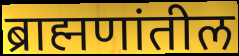
ब्राह्मणांतील